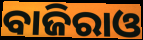
ବାଜିରାଓ